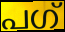
പഗ്